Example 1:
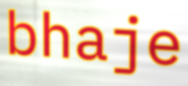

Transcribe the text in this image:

bhaje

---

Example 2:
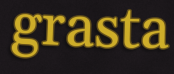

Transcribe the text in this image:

grasta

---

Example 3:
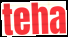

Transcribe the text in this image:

teha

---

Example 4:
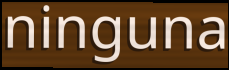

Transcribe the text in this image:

ninguna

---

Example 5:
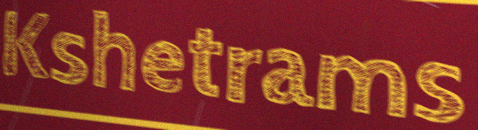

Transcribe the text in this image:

Kshetrams